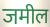
जमील